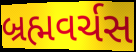
બ્રહ્મવર્ચસ